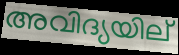
അവിദ്യയില്